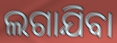
ଲଗାଯିବା